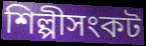
শিল্পীসংকট